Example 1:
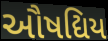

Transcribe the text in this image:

ઔષદ્યિય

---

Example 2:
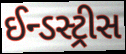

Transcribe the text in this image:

ઈન્ડસ્ટ્રીસ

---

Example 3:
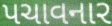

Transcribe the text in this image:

પચાવનાર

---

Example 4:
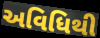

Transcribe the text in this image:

અવિધિથી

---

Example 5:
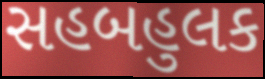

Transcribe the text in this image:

સહબહુલક